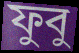
ফুবু